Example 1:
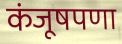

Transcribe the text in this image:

कंजूषपणा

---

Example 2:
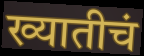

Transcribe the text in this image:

ख्यातीचं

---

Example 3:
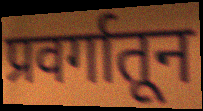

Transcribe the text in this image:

प्रवर्गातून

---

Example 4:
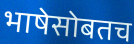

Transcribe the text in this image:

भाषेसोबतच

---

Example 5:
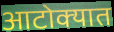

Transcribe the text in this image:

आटोक्‍यात